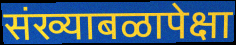
संख्याबळापेक्षा